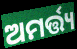
ଅମର୍ତ୍ତ୍ୟ